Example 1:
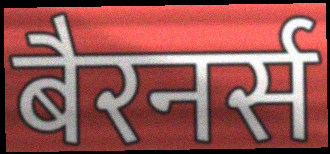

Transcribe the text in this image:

बैरनर्स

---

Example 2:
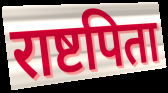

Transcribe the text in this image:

राष्टपिता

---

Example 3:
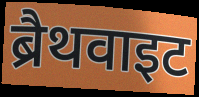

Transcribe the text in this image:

ब्रैथवाइट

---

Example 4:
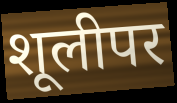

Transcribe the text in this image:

शूलीपर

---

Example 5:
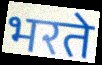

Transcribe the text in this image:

भरते